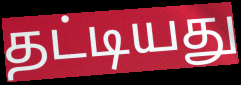
தட்டியது